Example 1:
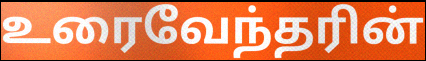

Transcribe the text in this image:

உரைவேந்தரின்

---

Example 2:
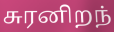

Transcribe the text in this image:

சுரனிறந்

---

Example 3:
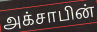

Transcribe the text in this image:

அக்சாபின்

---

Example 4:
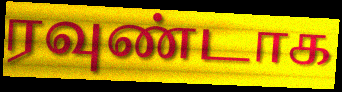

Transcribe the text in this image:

ரவுண்டாக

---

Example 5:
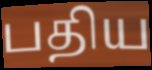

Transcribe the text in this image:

பதிய